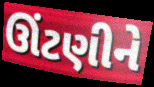
ઊંટણીને